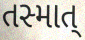
તસ્માત્